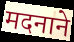
मदनाने